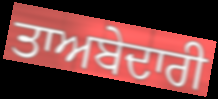
ਤਾਅਬੇਦਾਰੀ